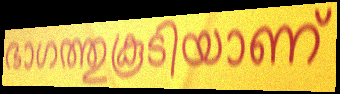
ഭാഗത്തുകൂടിയാണ്